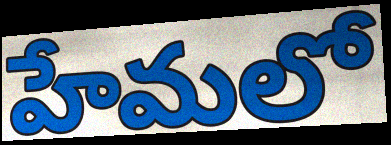
హేమలో